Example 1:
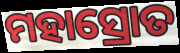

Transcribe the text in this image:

ମହାସ୍ରୋତ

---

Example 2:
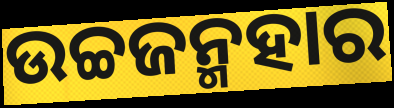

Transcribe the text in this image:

ଉଚ୍ଚଜନ୍ମହାର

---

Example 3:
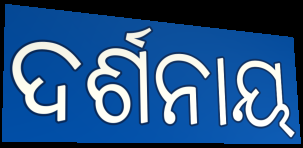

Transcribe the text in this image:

ଦର୍ଶନାୟ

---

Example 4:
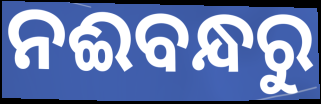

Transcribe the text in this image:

ନଈବନ୍ଧରୁ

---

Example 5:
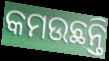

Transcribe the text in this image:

କମଉଛନ୍ତି